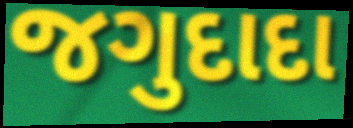
જગુદાદા